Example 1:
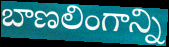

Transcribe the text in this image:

బాణలింగాన్ని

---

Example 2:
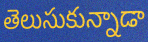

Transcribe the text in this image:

తెలుసుకున్నాడా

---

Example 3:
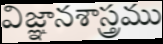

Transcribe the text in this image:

విజ్ఞానశాస్త్రము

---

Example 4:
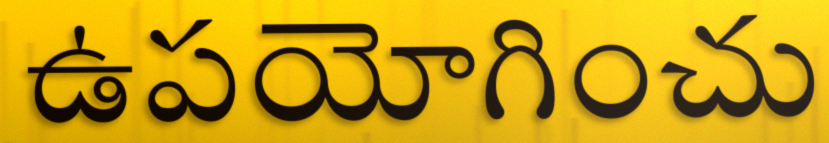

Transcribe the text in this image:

ఉపయోగించు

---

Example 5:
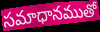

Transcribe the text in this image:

సమాధానముతో